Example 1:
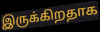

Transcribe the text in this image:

இருக்கிறதாக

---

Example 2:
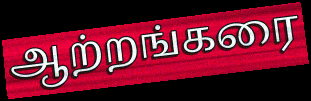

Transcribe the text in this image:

ஆற்றங்கரை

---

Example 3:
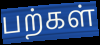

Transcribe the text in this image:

பற்கள்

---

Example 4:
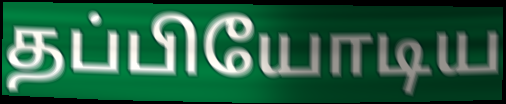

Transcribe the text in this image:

தப்பியோடிய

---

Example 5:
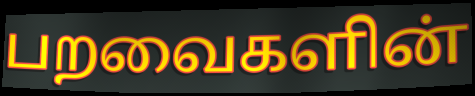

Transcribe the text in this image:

பறவைகளின்